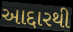
આદ્દારથી